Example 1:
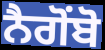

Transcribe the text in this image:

ਨੈਗੋਂਬੋ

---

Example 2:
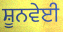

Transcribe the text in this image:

ਸ਼ੂਨਵੇਈ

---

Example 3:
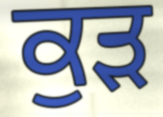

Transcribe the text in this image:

ਕੁੜ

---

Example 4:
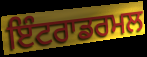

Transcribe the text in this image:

ਇੰਟਰਾਡਰਮਲ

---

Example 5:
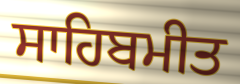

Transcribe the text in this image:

ਸਾਹਿਬਮੀਤ